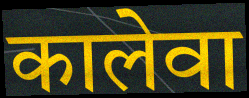
कालेवा